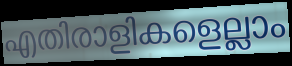
എതിരാളികളെല്ലാം